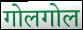
गोलगोल